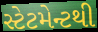
સ્ટેટમેન્ટથી